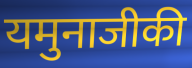
यमुनाजीकी